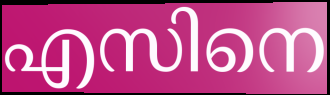
എസിനെ